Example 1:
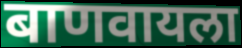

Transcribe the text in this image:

बाणवायला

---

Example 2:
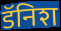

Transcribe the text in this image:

डॅनिश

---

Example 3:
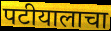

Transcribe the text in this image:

पटीयालाचा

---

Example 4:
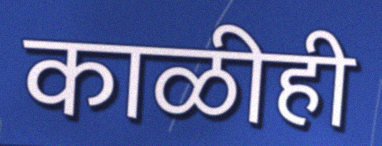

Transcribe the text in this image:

काळीही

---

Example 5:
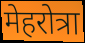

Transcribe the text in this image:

मेहरोत्रा